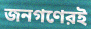
জনগণেরই